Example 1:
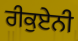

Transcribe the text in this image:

ਰੀਕੁਏਨੀ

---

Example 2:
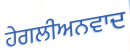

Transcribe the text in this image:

ਹੇਗਲੀਅਨਵਾਦ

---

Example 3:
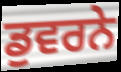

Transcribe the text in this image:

ਡੁਵਰਨੇ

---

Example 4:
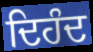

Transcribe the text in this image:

ਦਿਹੰਦ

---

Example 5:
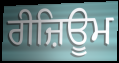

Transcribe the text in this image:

ਰੀਜ਼ਿਊਮ